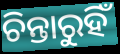
ଚିନ୍ତାରୁହିଁ